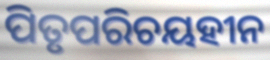
ପିତୃପରିଚୟହୀନ